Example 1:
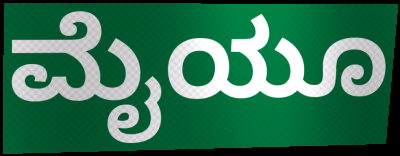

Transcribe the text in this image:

ಮೈಯೂ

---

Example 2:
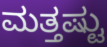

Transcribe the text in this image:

ಮತ್ತಷ್ಟು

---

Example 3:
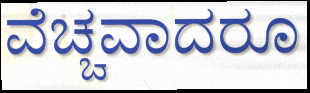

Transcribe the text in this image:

ವೆಚ್ಚವಾದರೂ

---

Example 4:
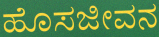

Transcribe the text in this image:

ಹೊಸಜೀವನ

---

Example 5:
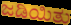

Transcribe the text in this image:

ಜಡಿಯಿತು